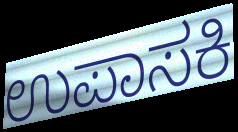
ಉಪಾಸಕಿ